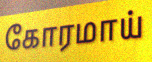
கோரமாய்